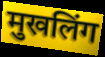
मुखलिंग